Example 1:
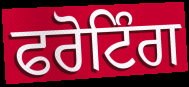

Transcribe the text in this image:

ਫਰੋਟਿੰਗ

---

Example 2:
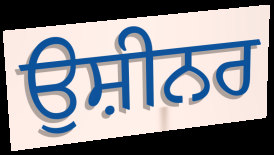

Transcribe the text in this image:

ਉਸ਼ੀਨਰ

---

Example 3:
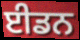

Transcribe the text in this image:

ਈਡਨ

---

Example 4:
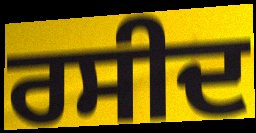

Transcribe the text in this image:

ਰਸੀਦ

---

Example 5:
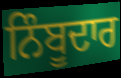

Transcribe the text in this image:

ਨਿੰਬੂਦਾਰ